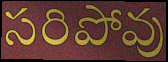
సరిపోవు